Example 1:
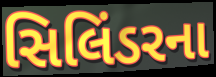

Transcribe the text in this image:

સિલિંડરના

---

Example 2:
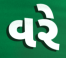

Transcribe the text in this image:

વરે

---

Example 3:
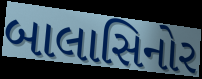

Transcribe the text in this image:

બાલાસિનોર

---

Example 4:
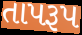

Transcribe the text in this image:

તાપરૂપ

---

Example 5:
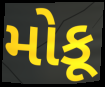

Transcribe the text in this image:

મોકૂ